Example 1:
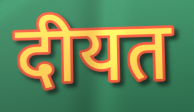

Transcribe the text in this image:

दीयत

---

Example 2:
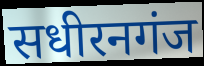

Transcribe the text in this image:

सधीरनगंज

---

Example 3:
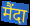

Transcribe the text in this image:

मैंदा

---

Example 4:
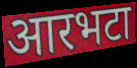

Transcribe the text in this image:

आरभटा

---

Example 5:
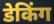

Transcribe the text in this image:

डेकिंग